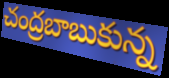
చంద్రబాబుకున్న